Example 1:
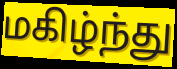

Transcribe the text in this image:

மகிழ்ந்து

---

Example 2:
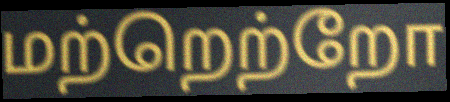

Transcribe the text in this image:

மற்றெற்றோ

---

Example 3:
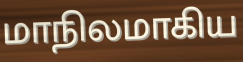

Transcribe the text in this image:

மாநிலமாகிய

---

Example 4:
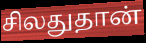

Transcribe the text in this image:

சிலதுதான்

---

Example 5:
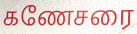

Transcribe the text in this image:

கணேசரை